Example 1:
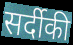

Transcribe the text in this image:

सर्दीकी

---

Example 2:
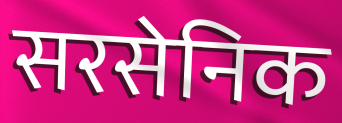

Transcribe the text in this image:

सरसेनिक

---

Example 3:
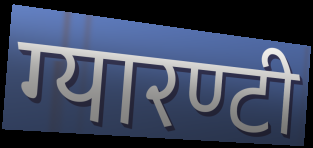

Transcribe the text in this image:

ग्यारण्टी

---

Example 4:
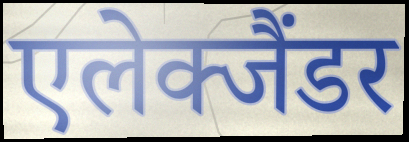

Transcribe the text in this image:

एलेक्जैंडर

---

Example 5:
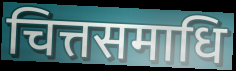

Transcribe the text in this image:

चित्तसमाधि